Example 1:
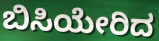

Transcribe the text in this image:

ಬಿಸಿಯೇರಿದ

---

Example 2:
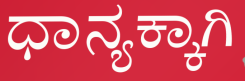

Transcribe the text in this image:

ಧಾನ್ಯಕ್ಕಾಗಿ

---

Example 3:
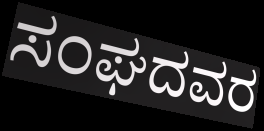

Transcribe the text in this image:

ಸಂಘದವರ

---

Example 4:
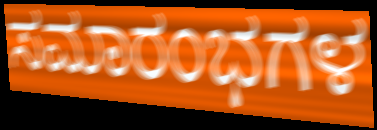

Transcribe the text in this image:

ಸಮಾರಂಭಗಳ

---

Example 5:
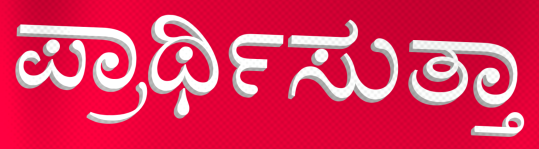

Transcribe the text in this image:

ಪ್ರಾರ್ಥಿಸುತ್ತಾ